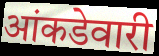
आंकडेवारी